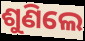
ଶୁଣିଲେ